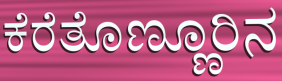
ಕೆರೆತೊಣ್ಣೂರಿನ